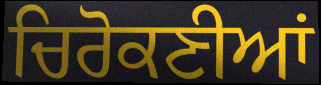
ਚਿਰੋਕਣੀਆਂ